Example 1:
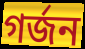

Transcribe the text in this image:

গৰ্জন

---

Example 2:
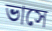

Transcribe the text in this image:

ভাসে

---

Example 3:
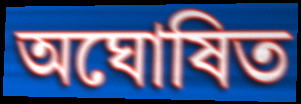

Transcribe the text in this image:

অঘোষিত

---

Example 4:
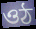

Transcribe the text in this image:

ওঠ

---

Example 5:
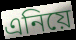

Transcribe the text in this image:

এনিয়ে